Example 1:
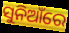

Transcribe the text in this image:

ସୁନିଆଁରେ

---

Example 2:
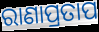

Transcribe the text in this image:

ରାଣାପ୍ରତାପ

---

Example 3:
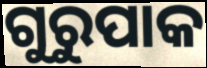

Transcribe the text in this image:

ଗୁରୁପାକ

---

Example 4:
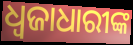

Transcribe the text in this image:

ଧ୍ୱଜାଧାରୀଙ୍କ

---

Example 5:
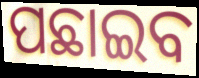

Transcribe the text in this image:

ପଛାଇବ